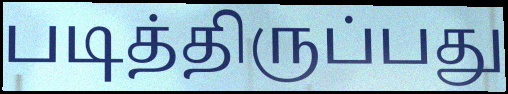
படித்திருப்பது